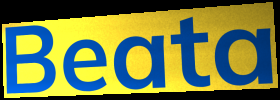
Beata